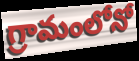
గ్రామంలోనో